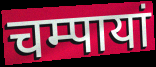
चम्पायां